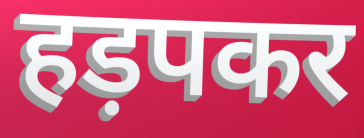
हड़पकर